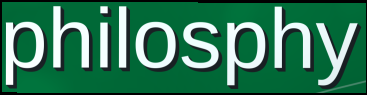
philosphy